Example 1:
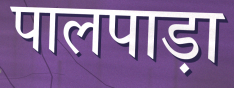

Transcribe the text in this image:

पालपाड़ा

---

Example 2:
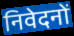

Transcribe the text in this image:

निवेदनों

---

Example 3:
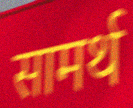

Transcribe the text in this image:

सामर्थ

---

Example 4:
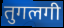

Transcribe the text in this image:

तुगलगी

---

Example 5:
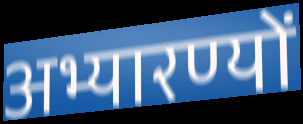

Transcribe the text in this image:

अभ्यारण्यों